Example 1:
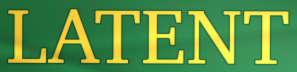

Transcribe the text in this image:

LATENT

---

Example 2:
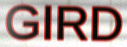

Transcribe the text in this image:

GIRD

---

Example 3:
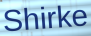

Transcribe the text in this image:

Shirke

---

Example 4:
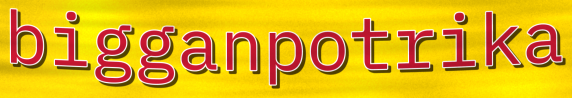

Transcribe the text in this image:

bigganpotrika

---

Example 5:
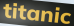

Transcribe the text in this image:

titanic